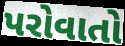
પરોવાતો